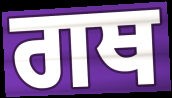
ਗਥ